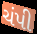
ચંપી